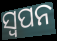
ସ୍ବପନ